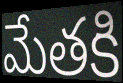
మేతకి